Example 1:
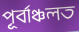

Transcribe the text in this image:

পূৰ্বাঞ্চলত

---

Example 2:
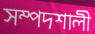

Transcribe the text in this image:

সম্পদশালী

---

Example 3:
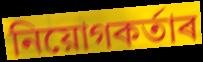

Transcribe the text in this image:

নিয়োগকৰ্তাৰ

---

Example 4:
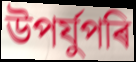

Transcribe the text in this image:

উপৰ্যুপৰি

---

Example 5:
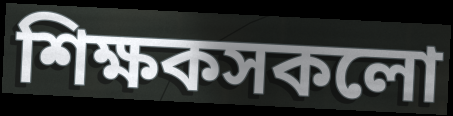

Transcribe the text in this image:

শিক্ষকসকলো